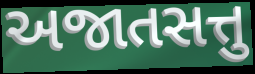
અજાતસત્તુ